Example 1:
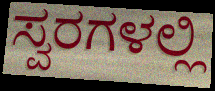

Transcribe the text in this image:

ಸ್ವರಗಳಲ್ಲಿ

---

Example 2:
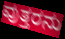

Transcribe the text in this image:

ವುತ್ತರನು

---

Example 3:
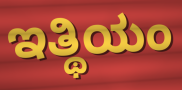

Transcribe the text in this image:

ಇತ್ಥಿಯಂ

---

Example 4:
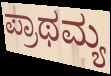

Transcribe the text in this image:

ಪ್ರಾಥಮ್ಯ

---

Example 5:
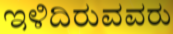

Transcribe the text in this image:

ಇಳಿದಿರುವವರು